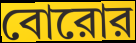
বোরোর